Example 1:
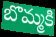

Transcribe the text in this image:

బొమ్మకి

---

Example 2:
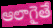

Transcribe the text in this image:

ఆలాగైతే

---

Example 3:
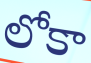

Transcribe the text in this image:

లోకా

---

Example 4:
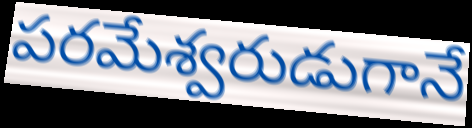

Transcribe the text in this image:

పరమేశ్వరుడుగానే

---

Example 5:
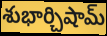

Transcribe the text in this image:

శుభార్చిషామ్